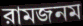
রামজনম